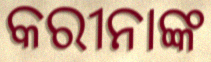
କରୀନାଙ୍କ